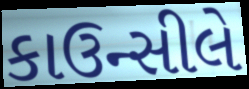
કાઉન્સીલે